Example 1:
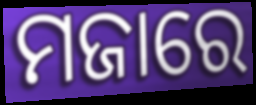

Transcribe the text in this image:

ମଜାରେ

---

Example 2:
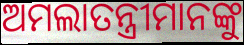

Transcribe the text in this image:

ଅମଲାତନ୍ତ୍ରୀମାନଙ୍କୁ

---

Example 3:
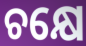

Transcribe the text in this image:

ଚକ୍ଷେ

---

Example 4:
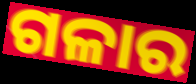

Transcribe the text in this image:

ଗଳାର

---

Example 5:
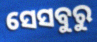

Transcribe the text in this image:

ସେସବୁରୁ